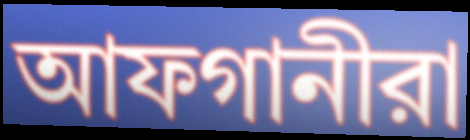
আফগানীরা